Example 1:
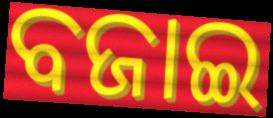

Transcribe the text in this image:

ବଜାଇ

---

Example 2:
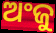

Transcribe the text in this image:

ଅଂଜୁ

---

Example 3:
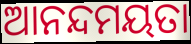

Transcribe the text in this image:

ଆନନ୍ଦମୟତା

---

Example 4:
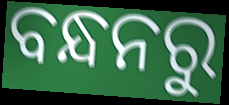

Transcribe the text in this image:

ବନ୍ଧନରୁ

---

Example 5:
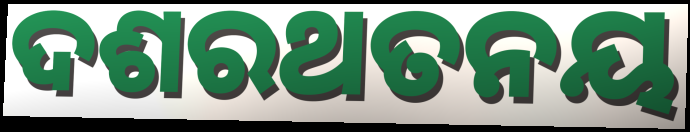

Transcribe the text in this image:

ଦଶରଥତନୟ